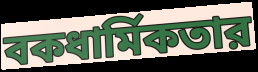
বকধার্মিকতার